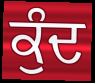
ਕੁੰਦ